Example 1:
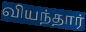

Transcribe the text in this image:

வியந்தார்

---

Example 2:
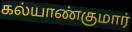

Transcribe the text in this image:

கல்யாண்குமார்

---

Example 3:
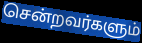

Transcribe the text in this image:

சென்றவர்களும்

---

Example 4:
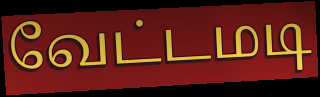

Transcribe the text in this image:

வேட்டமடி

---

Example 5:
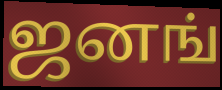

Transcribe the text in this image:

ஜனங்